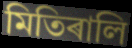
মিতিৰালি